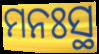
ମନଃସ୍ଥ